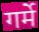
गर्मे